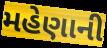
મહેણાની